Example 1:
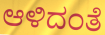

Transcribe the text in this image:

ಆಳಿದಂತೆ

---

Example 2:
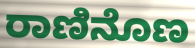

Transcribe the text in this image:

ರಾಣಿನೊಣ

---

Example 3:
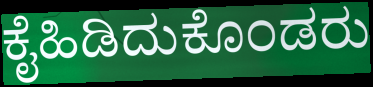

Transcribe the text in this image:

ಕೈಹಿಡಿದುಕೊಂಡರು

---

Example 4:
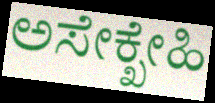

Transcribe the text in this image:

ಅಸೇಕ್ಖೇಹಿ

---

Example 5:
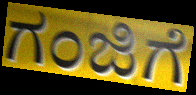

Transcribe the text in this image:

ಗಂಜಿಗೆ